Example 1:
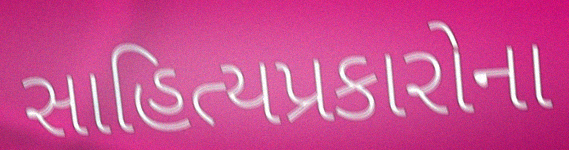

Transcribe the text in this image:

સાહિત્યપ્રકારોના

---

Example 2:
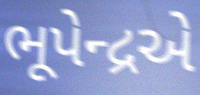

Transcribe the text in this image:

ભૂપેન્દ્રએ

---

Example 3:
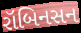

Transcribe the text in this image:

રૉબિનસન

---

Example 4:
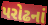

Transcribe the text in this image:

પરોઢનાં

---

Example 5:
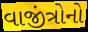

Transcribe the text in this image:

વાજીંત્રોનો